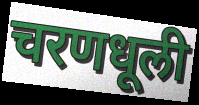
चरणधूली